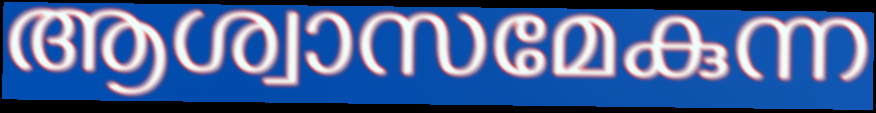
ആശ്വാസമേകുന്ന